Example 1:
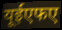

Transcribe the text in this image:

यूईएफए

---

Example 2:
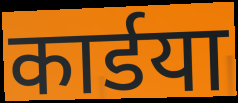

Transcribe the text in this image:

कार्डया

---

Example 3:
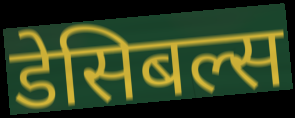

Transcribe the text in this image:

डेसिबल्स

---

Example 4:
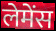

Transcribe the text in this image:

लेमेंस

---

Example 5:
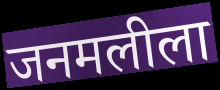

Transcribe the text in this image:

जनमलीला